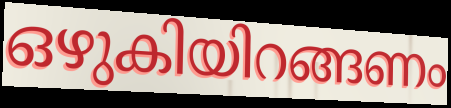
ഒഴുകിയിറങ്ങണം